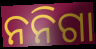
ନନିଗା